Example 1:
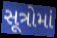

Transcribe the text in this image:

સૂત્રોમાં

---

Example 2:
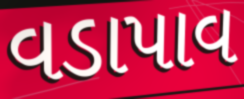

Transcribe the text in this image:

વડાપાવ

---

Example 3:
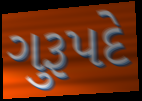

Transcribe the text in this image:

ગુરૂપદે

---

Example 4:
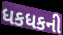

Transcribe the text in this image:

ધકધકની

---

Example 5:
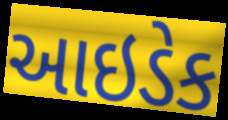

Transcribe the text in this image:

આઇડેક